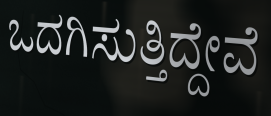
ಒದಗಿಸುತ್ತಿದ್ದೇವೆ